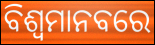
ବିଶ୍ୱମାନବରେ